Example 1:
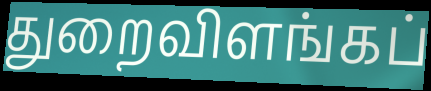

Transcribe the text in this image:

துறைவிளங்கப்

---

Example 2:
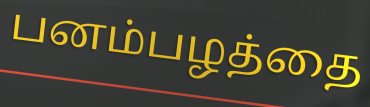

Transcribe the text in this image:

பனம்பழத்தை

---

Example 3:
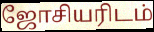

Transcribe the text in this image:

ஜோசியரிடம்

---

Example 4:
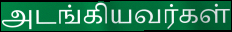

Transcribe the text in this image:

அடங்கியவர்கள்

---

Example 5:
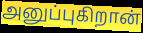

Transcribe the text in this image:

அனுப்புகிறான்